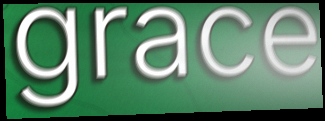
grace